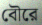
বৌরে